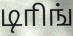
டிரிங்